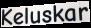
Keluskar